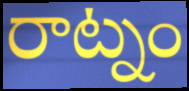
రాట్నం